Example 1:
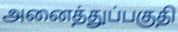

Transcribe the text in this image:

அனைத்துப்பகுதி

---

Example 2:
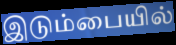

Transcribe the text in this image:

இடும்பையில்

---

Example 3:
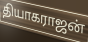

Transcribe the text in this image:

தியாகராஜன்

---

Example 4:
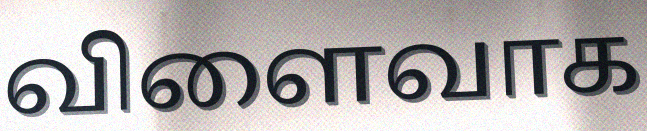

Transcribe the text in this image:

விளைவாக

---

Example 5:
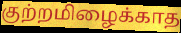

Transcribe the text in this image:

குற்றமிழைக்காத